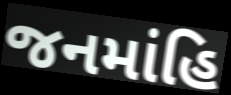
જનમાંહિ